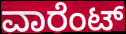
ವಾರೆಂಟ್